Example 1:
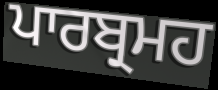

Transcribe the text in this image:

ਪਾਰਬ੍ਰਮਹ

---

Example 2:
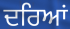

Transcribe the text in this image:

ਦਰਿਆਂ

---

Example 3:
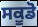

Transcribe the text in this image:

ਸਕੂਡੋ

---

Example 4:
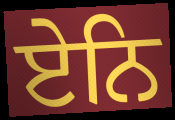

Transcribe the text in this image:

ਏਨਿ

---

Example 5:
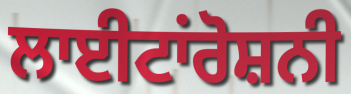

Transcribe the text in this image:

ਲਾਈਟਾਂਰੋਸ਼ਨੀ